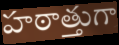
హఠాత్తుగా